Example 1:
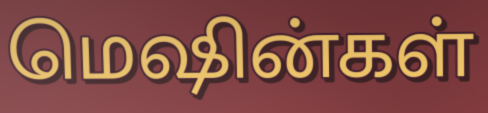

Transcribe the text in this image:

மெஷின்கள்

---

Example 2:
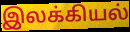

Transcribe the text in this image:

இலக்கியல்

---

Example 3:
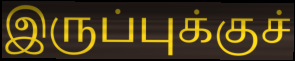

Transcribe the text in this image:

இருப்புக்குச்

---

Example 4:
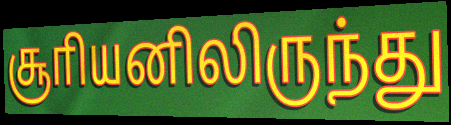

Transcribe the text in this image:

சூரியனிலிருந்து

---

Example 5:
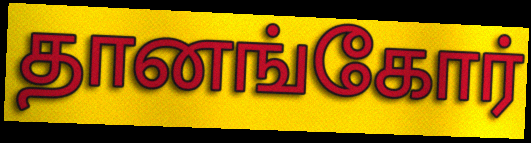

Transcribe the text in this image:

தானங்கோர்